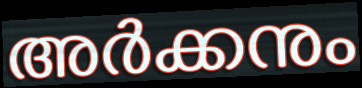
അർക്കനും